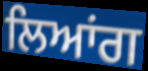
ਲਿਆਂਗ